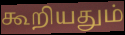
கூறியதும்